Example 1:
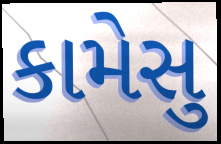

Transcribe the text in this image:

કામેસુ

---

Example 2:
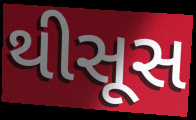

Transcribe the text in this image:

થીસૂસ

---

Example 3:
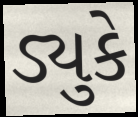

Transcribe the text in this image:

ડ્યુકે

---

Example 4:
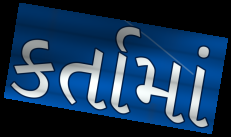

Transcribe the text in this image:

કર્તામાં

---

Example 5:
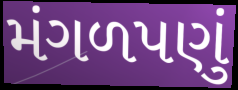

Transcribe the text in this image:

મંગળપણું